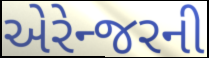
એરેન્જરની